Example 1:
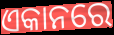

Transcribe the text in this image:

ଏକାନରେ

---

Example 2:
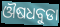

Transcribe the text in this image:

ଔଷଧବୁଡା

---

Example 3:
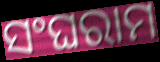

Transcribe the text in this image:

ସଂଘରାମ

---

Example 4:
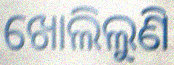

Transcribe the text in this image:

ଖୋଲିଲୁଣି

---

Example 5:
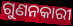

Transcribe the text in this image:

ଗୁଣନକାରୀ